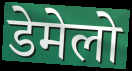
डेमेलो